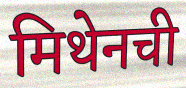
मिथेनची